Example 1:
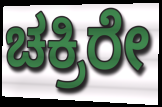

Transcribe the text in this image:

ಚಕ್ರಿರೇ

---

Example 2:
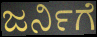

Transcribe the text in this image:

ಜರ್ನಿಗೆ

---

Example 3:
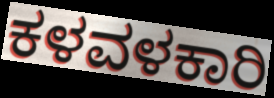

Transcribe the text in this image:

ಕಳವಳಕಾರಿ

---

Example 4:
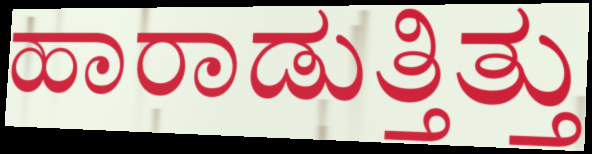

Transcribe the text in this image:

ಹಾರಾಡುತ್ತಿತ್ತು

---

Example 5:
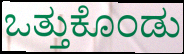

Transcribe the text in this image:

ಒತ್ತುಕೊಂಡು